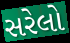
સરેલો